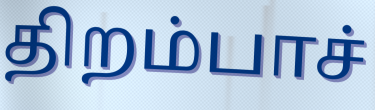
திறம்பாச்